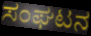
ಸಂಘಟನ